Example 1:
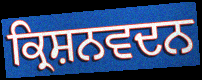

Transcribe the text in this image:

ਕ੍ਰਿਸ਼ਨਵਦਨ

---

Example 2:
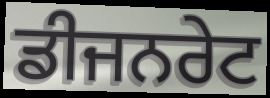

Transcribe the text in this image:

ਡੀਜਨਰੇਟ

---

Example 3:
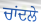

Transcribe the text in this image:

ਚਾਂਦਲੇ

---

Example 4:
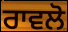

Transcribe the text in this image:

ਰਾਵਲੋ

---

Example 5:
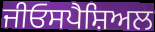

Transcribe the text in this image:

ਜੀਓਸਪੈਸ਼ਿਅਲ